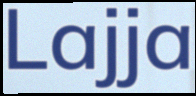
Lajja